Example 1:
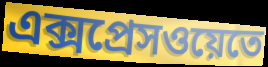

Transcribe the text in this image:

এক্সপ্রেসওয়েতে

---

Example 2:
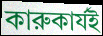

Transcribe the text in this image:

কারুকার্যই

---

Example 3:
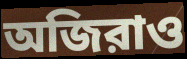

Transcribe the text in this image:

অজিরাও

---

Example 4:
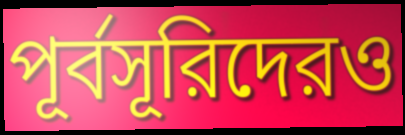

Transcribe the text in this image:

পূর্বসূরিদেরও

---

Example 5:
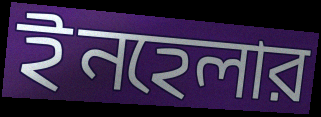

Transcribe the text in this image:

ইনহেলার